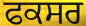
ਫਕਸਰ